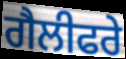
ਗੈਲੀਫਰੇ